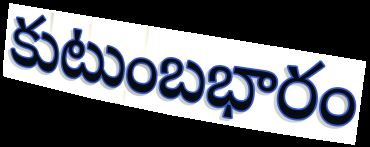
కుటుంబభారం